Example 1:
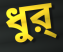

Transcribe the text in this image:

ধুর্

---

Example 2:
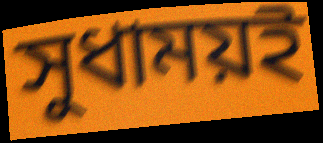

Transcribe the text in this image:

সুধাময়ই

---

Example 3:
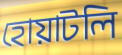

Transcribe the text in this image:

হোয়াটলি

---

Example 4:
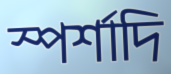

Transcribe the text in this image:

স্পর্শাদি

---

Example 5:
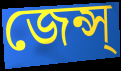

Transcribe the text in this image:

জেন্স্